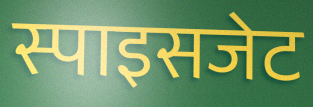
स्‍पाइसजेट